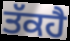
ਤੱਕਹੈ